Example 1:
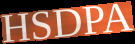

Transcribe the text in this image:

HSDPA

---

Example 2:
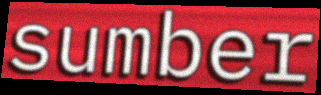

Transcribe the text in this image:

sumber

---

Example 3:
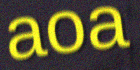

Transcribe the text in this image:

aoa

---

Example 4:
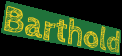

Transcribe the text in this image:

Barthold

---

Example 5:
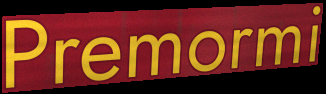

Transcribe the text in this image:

Premormi